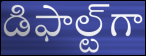
డిఫాల్ట్‌గా